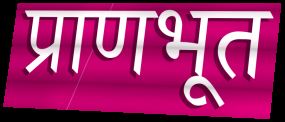
प्राणभूत